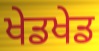
ਖੇਡਖੇਡ